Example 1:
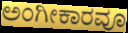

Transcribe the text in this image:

ಅಂಗೀಕಾರವೂ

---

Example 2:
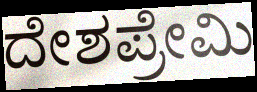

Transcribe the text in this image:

ದೇಶಪ್ರೇಮಿ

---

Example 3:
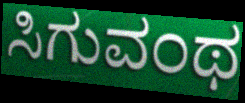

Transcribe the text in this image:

ಸಿಗುವಂಥ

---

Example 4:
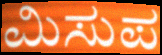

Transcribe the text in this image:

ಮಿಸುಪ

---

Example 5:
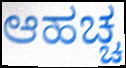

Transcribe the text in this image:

ಆಹಚ್ಚ